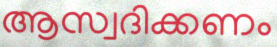
ആസ്വദിക്കണം